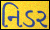
નિડર